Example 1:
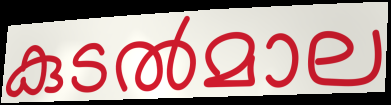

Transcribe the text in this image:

കുടൽമാല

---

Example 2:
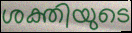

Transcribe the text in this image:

ശക്തിയുടെ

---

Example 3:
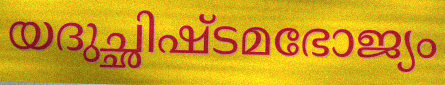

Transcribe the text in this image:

യദുച്ഛിഷ്ടമഭോജ്യം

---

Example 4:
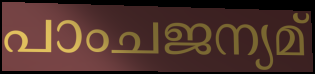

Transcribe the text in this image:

പാംചജന്യമ്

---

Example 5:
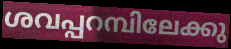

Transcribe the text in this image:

ശവപ്പറമ്പിലേക്കു